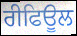
ਰੀਫਿਊਲ